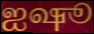
ஐஷூ